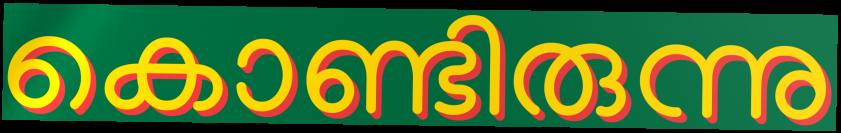
കൊണ്ടിരുന്നു